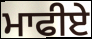
ਮਾਫੀਏ